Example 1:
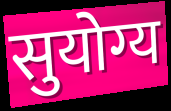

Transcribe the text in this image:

सुयोग्य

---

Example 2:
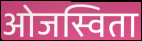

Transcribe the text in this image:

ओजस्विता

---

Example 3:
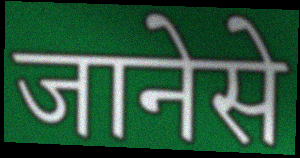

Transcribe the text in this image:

जानेसे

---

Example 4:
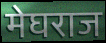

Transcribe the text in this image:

मेघराज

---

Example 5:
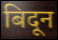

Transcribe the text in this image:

बिदून